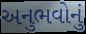
અનુભવોનું